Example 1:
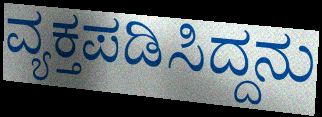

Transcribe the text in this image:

ವ್ಯಕ್ತಪಡಿಸಿದ್ದನು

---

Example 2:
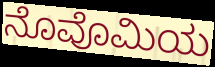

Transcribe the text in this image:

ನೊವೊಮಿಯ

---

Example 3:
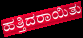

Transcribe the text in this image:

ಹತ್ತಿದರಾಯಿತು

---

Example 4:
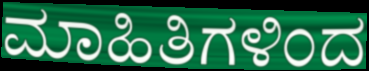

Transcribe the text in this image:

ಮಾಹಿತಿಗಳಿಂದ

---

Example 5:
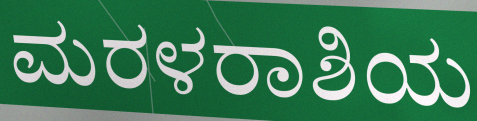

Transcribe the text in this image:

ಮರಳರಾಶಿಯ